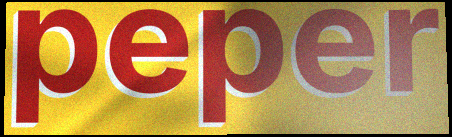
peper